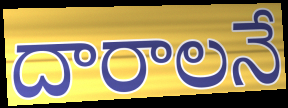
దారాలనే